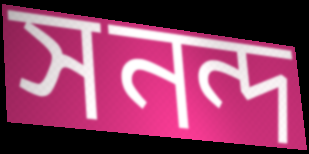
সনন্দ